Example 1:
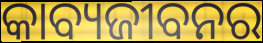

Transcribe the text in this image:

କାବ୍ୟଜୀବନର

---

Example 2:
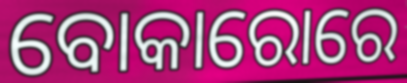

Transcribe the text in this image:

ବୋକାରୋରେ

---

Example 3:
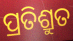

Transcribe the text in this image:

ପ୍ରତିଶ୍ରୁତ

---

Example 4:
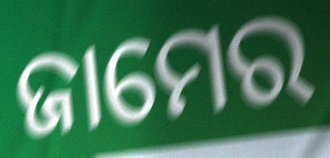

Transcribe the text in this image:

ଜାମେର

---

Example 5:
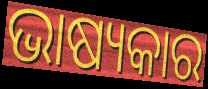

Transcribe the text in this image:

ଭାଷ୍ୟକାର